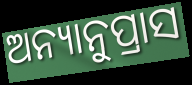
ଅନ୍ୟାନୁପ୍ରାସ